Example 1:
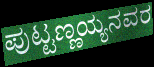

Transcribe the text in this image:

ಪುಟ್ಟಣ್ಣಯ್ಯನವರ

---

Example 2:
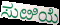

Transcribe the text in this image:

ಸುೞಿಯೆ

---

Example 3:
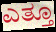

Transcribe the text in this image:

ಎತ್ತೂ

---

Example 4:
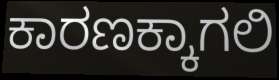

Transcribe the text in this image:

ಕಾರಣಕ್ಕಾಗಲಿ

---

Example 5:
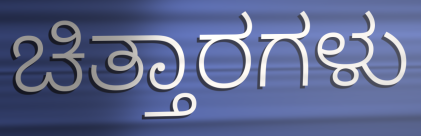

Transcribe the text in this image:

ಚಿತ್ತಾರಗಳು